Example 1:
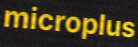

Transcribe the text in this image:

microplus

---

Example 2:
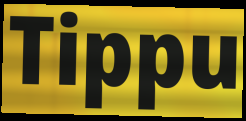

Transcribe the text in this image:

Tippu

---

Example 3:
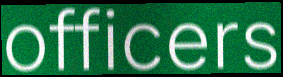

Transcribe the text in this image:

officers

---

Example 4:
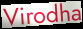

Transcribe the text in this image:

Virodha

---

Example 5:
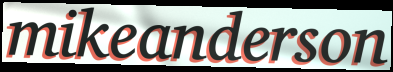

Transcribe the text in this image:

mikeanderson